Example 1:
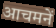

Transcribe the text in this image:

आचमनें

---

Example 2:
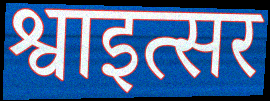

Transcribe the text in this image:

श्वाइत्सर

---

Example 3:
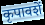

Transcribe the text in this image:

कृपावशें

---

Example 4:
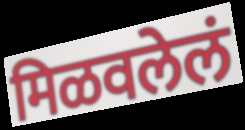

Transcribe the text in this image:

मिळवलेलं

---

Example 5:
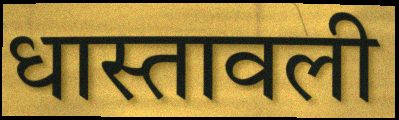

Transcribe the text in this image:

धास्तावली